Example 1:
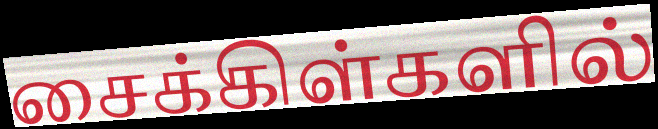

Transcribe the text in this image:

சைக்கிள்களில்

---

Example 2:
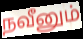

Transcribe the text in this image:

நவீனும்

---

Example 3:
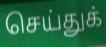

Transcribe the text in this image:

செய்துக்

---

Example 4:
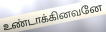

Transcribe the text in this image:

உண்டாக்கினவனே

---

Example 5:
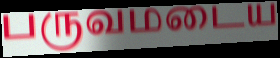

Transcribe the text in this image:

பருவமடைய